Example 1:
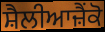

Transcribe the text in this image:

ਸ਼ੈਲੀਆਜ਼ੈਂਕੋ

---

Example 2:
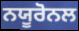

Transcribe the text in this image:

ਨਯੂਰੋਨਲ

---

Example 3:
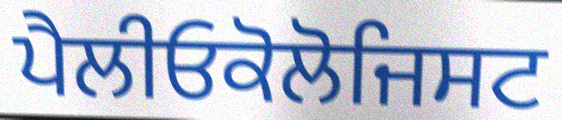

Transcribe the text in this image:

ਪੈਲੀਓਕੋਲੋਜਿਸਟ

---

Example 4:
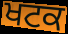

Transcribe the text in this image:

ਖਟਕ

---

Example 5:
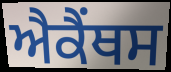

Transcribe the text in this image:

ਐਕੈਂਥਸ